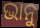
ଭାନୁ